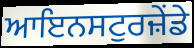
ਆਇਨਸਟੁਰਜ਼ੇਂਡੇ